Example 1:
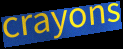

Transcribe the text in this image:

crayons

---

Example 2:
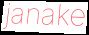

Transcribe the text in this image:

janake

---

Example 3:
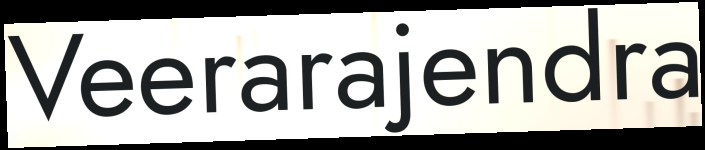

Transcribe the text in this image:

Veerarajendra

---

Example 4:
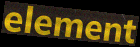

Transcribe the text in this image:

element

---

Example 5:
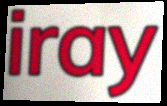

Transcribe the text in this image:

iray